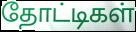
தோட்டிகள்